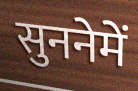
सुननेमें